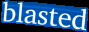
blasted